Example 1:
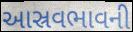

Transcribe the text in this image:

આસ્રવભાવની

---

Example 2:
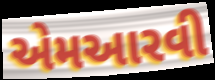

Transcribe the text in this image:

એમઆરવી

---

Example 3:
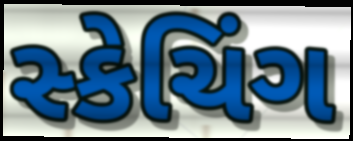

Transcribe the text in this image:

સ્કેચિંગ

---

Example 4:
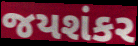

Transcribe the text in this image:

જયશંકર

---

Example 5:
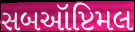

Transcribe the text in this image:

સબઑપ્ટિમલ